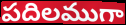
పదిలముగా